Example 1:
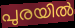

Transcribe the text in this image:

പുരയിൽ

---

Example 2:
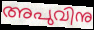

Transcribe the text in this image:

അപുവിനു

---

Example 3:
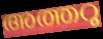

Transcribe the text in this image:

അത്തറു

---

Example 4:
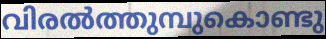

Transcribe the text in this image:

വിരൽത്തുമ്പുകൊണ്ടു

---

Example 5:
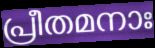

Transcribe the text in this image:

പ്രീതമനാഃ